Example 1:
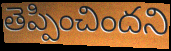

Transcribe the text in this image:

తెప్పించిందని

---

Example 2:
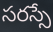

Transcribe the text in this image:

సరస్సే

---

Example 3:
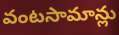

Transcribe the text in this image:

వంటసామాన్లు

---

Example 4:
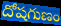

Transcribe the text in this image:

దోషగుణం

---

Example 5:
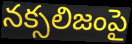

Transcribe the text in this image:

నక్సలిజంపై